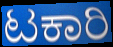
ಟಕಾರಿ